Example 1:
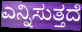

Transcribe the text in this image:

ಎನ್ನಿಸುತ್ತದೆ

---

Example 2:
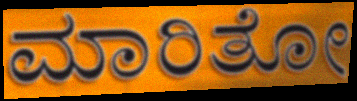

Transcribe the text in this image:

ಮಾರಿತೋ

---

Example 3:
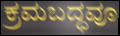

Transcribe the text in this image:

ಕ್ರಮಬದ್ಧವೂ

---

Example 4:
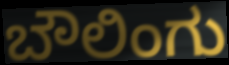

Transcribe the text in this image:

ಬೌಲಿಂಗು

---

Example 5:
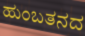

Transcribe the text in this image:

ಹುಂಬತನದ